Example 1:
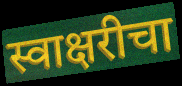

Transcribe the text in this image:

स्वाक्षरीचा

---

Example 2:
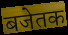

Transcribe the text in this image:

बजेतक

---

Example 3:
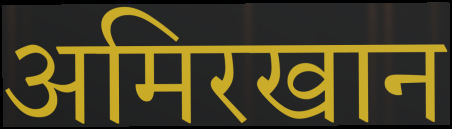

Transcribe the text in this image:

अमिरखान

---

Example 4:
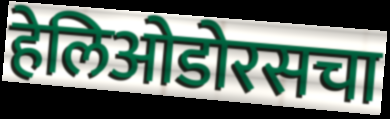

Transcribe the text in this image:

हेलिओडोरसचा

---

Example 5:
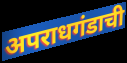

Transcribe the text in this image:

अपराधगंडाची